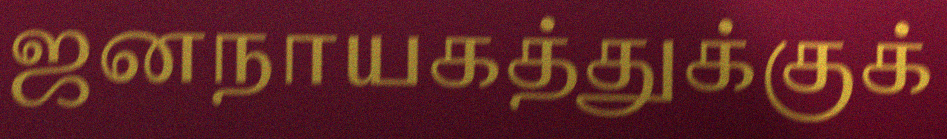
ஜனநாயகத்துக்குக்